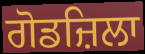
ਗੋਡਜ਼ਿਲਾ